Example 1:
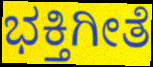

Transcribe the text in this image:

ಭಕ್ತಿಗೀತೆ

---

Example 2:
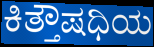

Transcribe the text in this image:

ಕಿತ್ತೌಷಧಿಯ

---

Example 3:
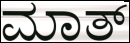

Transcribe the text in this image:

ಮಾತ್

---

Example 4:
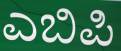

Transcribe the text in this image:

ಎಬಿಪಿ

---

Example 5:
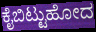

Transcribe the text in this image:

ಕೈಬಿಟ್ಟುಹೋದ